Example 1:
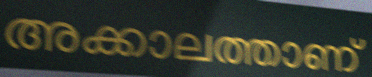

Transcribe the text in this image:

അക്കാലത്താണ്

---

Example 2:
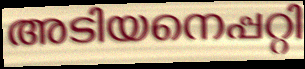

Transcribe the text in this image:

അടിയനെപ്പറ്റി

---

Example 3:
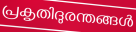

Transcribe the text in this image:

പ്രകൃതിദുരന്തങ്ങൾ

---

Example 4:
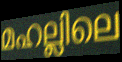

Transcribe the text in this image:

മഹല്ലിലെ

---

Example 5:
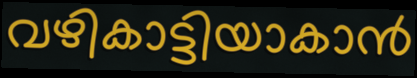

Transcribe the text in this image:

വഴികാട്ടിയാകാൻ